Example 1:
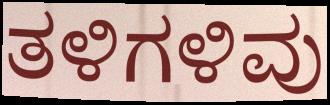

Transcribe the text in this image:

ತಳಿಗಳಿವು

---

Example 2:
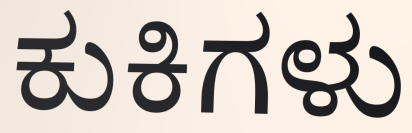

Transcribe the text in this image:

ಕುಕಿಗಳು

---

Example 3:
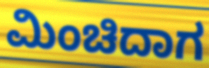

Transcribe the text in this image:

ಮಿಂಚಿದಾಗ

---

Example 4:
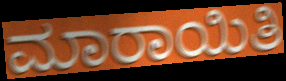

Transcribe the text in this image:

ಮಾರಾಯಿತಿ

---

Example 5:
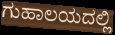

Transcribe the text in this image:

ಗುಹಾಲಯದಲ್ಲಿ